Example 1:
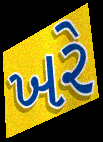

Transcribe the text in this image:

ખરે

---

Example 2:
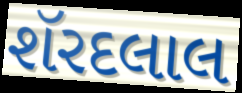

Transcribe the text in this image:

શૅરદલાલ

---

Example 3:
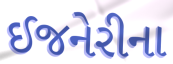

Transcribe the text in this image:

ઈજનેરીના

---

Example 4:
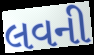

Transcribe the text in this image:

લવની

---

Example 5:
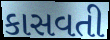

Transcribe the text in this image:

કાસવતી